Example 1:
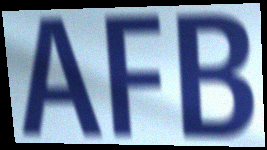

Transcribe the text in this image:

AFB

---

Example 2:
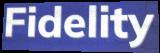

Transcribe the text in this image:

Fidelity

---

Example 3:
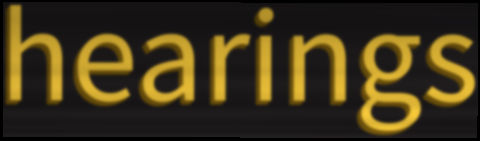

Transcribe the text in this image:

hearings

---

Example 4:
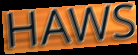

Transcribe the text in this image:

HAWS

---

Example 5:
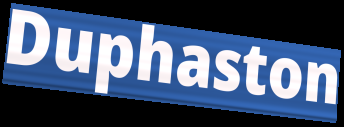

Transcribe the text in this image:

Duphaston